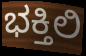
ಭಕ್ತಿಲಿ